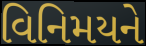
વિનિમયને